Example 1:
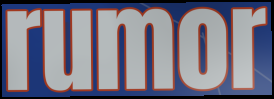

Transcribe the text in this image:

rumor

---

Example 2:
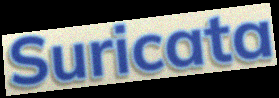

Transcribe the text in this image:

Suricata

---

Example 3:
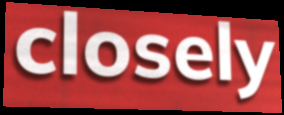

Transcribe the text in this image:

closely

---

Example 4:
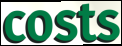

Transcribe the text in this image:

costs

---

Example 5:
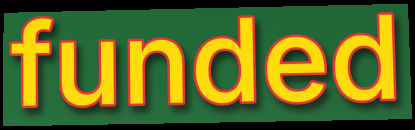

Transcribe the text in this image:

funded